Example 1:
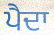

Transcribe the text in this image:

ਪੈਦਾ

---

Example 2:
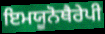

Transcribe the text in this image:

ਇਮਯੂਨੋਥੈਰੇਪੀ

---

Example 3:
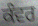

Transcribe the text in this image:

ਕੰਵਰ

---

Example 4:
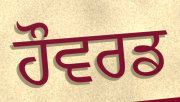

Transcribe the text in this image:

ਹੌਵਰਡ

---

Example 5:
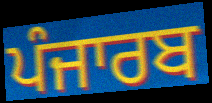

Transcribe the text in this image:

ਪੰਜਾਰਬ